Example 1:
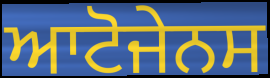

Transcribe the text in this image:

ਆਟੋਜੇਨਸ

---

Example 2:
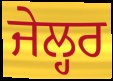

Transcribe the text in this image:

ਜੇਲ੍ਹਰ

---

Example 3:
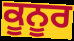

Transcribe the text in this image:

ਕੂਨੂਰ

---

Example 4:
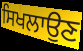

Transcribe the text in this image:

ਸਿਖਲਾਉਣ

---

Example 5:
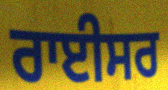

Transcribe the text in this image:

ਰਾਈਸਰ